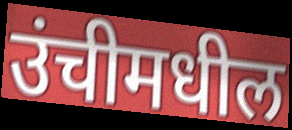
उंचीमधील